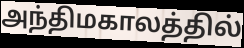
அந்திமகாலத்தில்